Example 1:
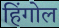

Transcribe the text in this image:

हिंगोल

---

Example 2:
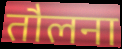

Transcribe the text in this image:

तौलना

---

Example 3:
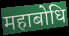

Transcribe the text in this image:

महाबोधि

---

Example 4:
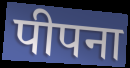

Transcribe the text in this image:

पीपना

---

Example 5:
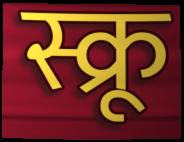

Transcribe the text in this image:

स्क्रू